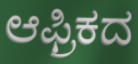
ಆಫ್ರಿಕದ